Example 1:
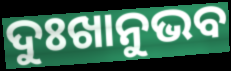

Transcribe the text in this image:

ଦୁଃଖାନୁଭବ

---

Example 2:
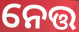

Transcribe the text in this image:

ନେତ୍ତ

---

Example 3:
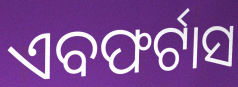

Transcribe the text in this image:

ଏବଫର୍ଟାସ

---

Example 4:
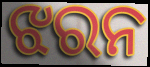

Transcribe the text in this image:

ଝରନ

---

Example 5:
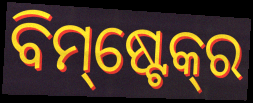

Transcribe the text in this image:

ବିମ୍‌ଷ୍ଟେକ୍‌ର